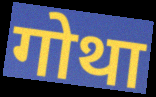
गोथा